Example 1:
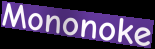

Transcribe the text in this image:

Mononoke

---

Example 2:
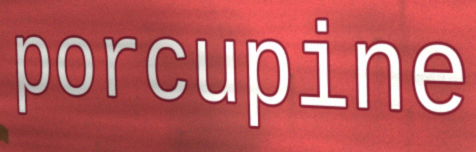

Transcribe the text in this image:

porcupine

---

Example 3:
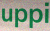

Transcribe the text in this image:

uppi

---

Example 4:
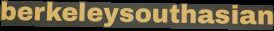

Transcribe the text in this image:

berkeleysouthasian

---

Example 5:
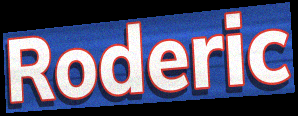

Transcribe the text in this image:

Roderic